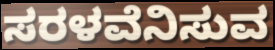
ಸರಳವೆನಿಸುವ